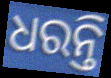
ଧରନ୍ତି